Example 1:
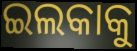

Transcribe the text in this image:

ଇଲକାକୁ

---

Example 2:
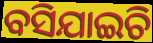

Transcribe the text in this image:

ବସିଯାଇଚି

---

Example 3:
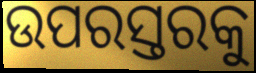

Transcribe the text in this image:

ଉପରସ୍ତରକୁ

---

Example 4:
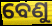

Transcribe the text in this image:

ବେଣୁ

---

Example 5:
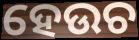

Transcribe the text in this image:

ହେଉଚ